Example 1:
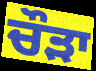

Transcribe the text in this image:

ਚੌੜਾ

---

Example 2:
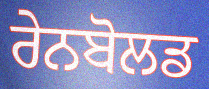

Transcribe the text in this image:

ਰੇਨਬੋਲਡ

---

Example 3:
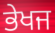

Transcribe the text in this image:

ਭੇਖਜ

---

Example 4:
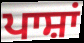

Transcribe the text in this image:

ਪਾਸ਼ਾਂ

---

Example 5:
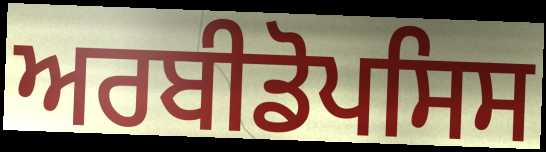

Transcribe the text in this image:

ਅਰਬੀਡੋਪਸਿਸ